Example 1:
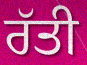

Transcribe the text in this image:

ਰੱਤੀ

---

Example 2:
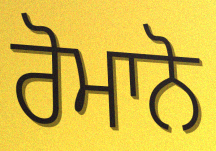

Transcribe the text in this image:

ਰੋਮਾਨੋ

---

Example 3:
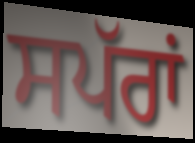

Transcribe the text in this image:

ਸਪੱਰਾਂ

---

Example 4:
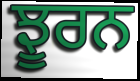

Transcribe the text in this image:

ਝੂਰਨ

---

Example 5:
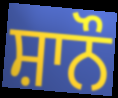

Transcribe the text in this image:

ਸ਼ਾਨੌ